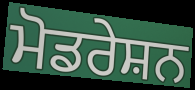
ਮੋਡਰੇਸ਼ਨ